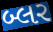
બ્લર